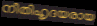
നീതിഹൃദയരായ